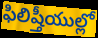
ఫిలిష్తీయుల్లో